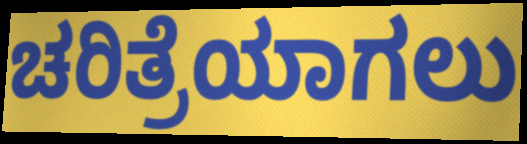
ಚರಿತ್ರೆಯಾಗಲು